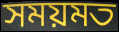
সময়মত